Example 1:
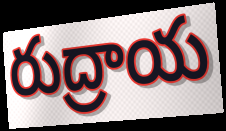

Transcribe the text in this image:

రుద్రాయ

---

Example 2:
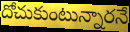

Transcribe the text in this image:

దోచుకుంటున్నారనే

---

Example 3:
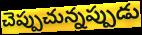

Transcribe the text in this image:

చెప్పుచున్నప్పుడు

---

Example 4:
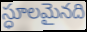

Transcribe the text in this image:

స్ధూలమైనది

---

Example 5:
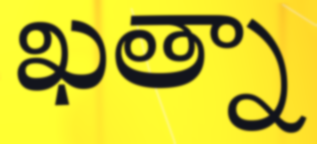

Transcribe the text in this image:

ఖత్నా